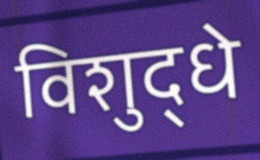
विशुद्धे